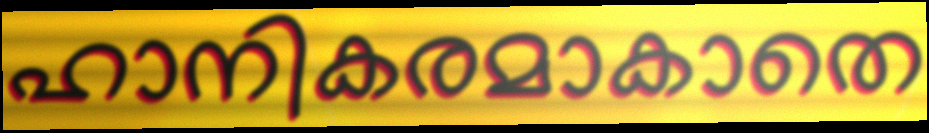
ഹാനികരമാകാതെ